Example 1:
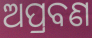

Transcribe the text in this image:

ଅପ୍ରବଣ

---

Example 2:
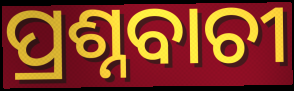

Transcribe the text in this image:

ପ୍ରଶ୍ନବାଚୀ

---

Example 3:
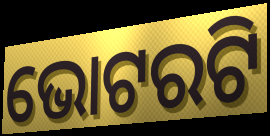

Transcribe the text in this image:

ଭୋଟରଟି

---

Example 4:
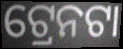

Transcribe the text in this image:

ଟ୍ରେନଟା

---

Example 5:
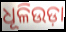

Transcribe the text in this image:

ଧୂଳିଉଡ଼ା